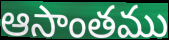
ఆసాంతము